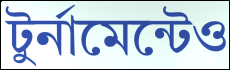
টুর্নামেন্টেও